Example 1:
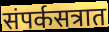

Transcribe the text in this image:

संपर्कसत्रात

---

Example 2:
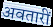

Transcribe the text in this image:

अवतारीं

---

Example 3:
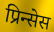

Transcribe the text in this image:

प्रिन्सेस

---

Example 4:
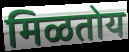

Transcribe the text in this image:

मिळतोय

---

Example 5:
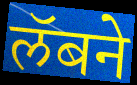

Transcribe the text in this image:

लॅबने